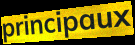
principaux